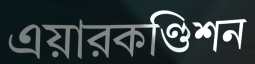
এয়ারকণ্ডিশন